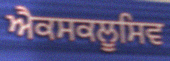
ਐਕਸਕਲੂਸਿਵ